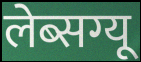
लेब्सग्यू